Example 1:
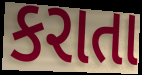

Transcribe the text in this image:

કરાતા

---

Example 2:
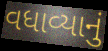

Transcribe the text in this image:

વધાવ્યાનું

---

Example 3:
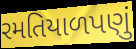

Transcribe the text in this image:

રમતિયાળપણું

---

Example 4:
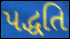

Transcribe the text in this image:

પદ્ધતિ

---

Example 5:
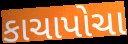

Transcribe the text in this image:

કાચાપોચા